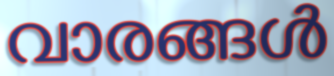
വാരങ്ങൾ